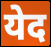
येद